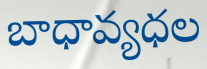
బాధావ్యధల